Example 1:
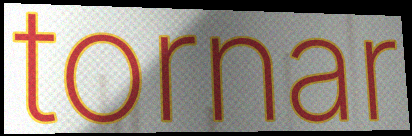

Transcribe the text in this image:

tornar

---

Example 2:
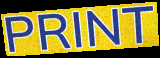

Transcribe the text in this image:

PRINT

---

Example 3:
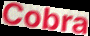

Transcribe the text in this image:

Cobra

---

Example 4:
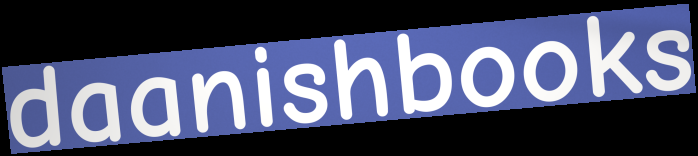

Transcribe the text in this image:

daanishbooks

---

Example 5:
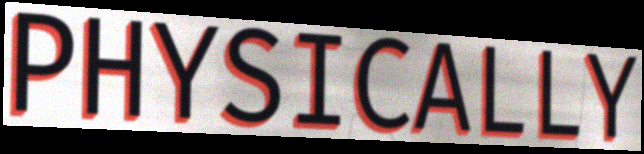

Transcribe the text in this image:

PHYSICALLY